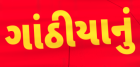
ગાંઠીયાનું